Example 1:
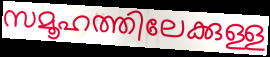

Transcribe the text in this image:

സമൂഹത്തിലേക്കുള്ള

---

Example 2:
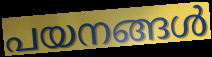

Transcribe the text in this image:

പയനങ്ങൾ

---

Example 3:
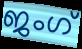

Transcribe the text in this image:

ജംഗ്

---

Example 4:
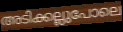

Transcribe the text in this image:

അടിക്കല്ലുപോലെ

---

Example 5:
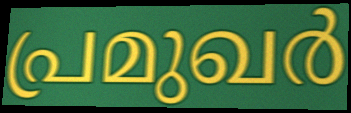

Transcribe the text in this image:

പ്രമുഖർ